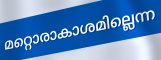
മറ്റൊരാകാശമില്ലെന്ന